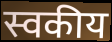
स्वकीय